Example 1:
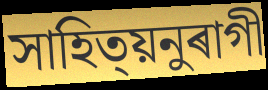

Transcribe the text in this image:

সাহিত্য়নুৰাগী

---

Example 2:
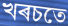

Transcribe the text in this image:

খৰচতে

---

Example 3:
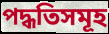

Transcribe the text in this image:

পদ্ধতিসমূহ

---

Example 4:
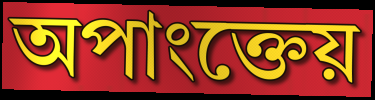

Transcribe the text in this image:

অপাংক্তেয়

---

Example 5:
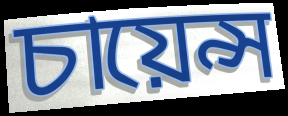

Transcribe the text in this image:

চায়েন্স